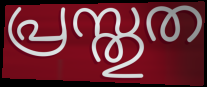
പ്രസ്തുത